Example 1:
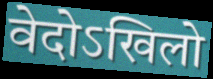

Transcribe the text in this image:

वेदोऽखिलो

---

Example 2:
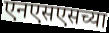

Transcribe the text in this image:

एनएसएसच्या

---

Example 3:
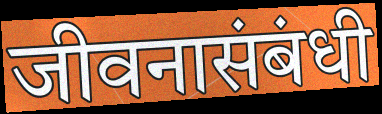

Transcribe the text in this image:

जीवनासंबंधी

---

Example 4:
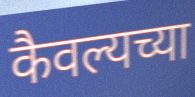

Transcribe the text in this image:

कैवल्यच्या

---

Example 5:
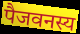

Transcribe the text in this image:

पैजवनस्य